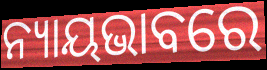
ନ୍ୟାୟଭାବରେ